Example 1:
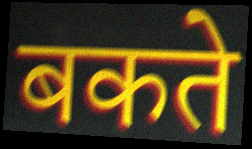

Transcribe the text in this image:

बकते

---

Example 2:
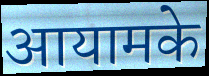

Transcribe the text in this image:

आयामके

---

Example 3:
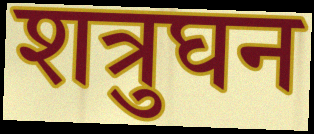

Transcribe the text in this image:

शत्रुघन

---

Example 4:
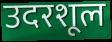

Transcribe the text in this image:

उदरशूल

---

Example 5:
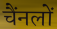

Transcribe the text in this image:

चैंनलों